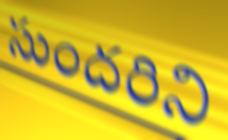
సుందరిని